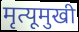
मृत्यूमुखी